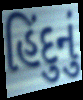
હિંદુનું